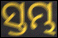
ସ୍ତମ୍ଭ